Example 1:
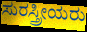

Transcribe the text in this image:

ಸುರಸ್ತ್ರೀಯರು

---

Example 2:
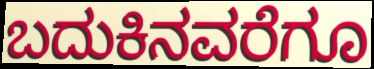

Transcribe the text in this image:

ಬದುಕಿನವರೆಗೂ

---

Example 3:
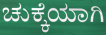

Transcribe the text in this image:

ಚುಕ್ಕೆಯಾಗಿ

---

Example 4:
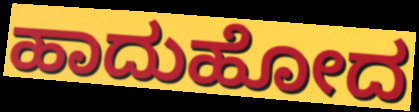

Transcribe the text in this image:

ಹಾದುಹೋದ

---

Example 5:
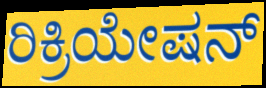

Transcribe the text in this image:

ರಿಕ್ರಿಯೇಷನ್